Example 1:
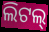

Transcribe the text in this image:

ଲିଟଲ୍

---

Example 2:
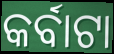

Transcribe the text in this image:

କର୍ବାଟା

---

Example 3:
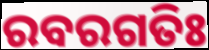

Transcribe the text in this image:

ରବରଗତିଃ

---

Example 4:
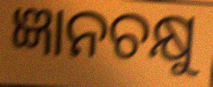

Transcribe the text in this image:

ଜ୍ଞାନଚକ୍ଷୁ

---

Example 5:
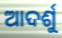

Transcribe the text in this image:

ଆଦର୍ଶୁ